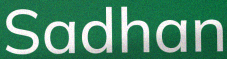
Sadhan